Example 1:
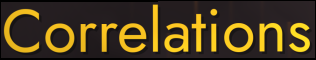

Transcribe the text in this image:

Correlations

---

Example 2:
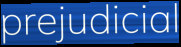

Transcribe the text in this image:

prejudicial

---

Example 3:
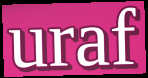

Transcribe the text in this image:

uraf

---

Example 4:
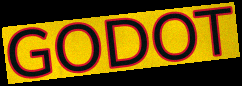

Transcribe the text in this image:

GODOT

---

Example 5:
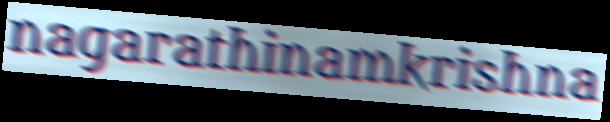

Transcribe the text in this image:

nagarathinamkrishna